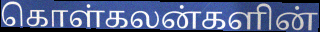
கொள்கலன்களின்